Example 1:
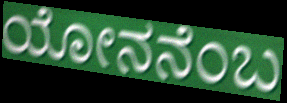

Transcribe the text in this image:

ಯೋನನೆಂಬ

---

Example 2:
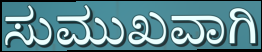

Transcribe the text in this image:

ಸುಮುಖವಾಗಿ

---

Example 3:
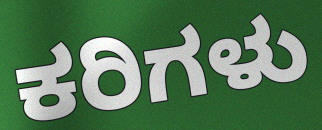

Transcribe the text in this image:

ಕರಿಗಳು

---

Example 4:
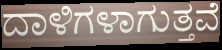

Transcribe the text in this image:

ದಾಳಿಗಳಾಗುತ್ತವೆ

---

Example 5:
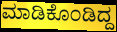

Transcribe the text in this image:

ಮಾಡಿಕೊಂಡಿದ್ದ